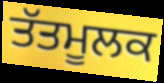
ਤੱਤਮੂਲਕ